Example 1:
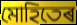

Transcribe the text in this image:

মোহিতেৰ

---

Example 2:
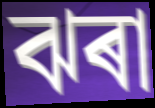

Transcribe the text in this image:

ঝৰা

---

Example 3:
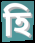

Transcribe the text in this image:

হি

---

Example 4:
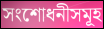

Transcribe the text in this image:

সংশোধনীসমূহ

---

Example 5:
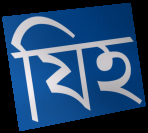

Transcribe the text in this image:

যিহ